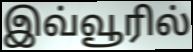
இவ்வூரில்